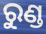
ରୁଣ୍ଡ